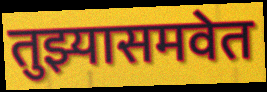
तुझ्यासमवेत